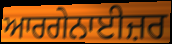
ਆਰਗੇਨਾਈਜ਼ਰ